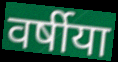
वर्षीया